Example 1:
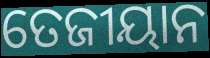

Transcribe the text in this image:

ତେଜୀୟାନ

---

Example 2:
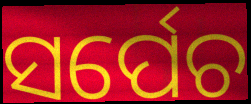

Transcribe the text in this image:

ସର୍ପେଚ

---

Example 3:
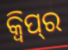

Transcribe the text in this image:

କ୍ଵିପ୍‌ର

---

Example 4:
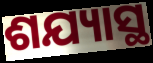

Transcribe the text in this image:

ଶଯ୍ୟାସ୍ଥ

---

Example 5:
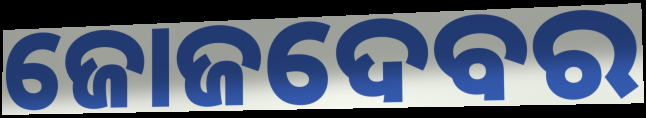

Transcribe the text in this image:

ଜୋଜଦେବର